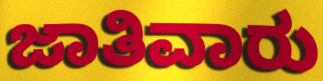
ಜಾತಿವಾರು